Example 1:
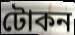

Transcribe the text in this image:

টোকন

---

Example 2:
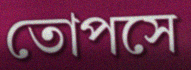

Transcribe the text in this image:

তোপসে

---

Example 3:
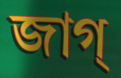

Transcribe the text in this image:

জাগ্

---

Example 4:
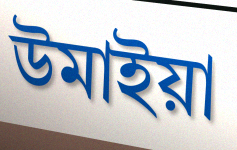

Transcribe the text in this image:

উমাইয়া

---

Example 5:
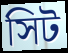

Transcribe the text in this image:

সিট